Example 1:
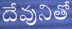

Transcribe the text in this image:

దేవునితో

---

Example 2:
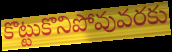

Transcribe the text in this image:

కొట్టుకొనిపోవువరకు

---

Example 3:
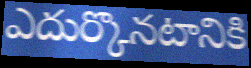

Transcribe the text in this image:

ఎదుర్కొనటానికి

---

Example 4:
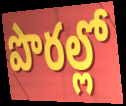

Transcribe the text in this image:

పొరల్లో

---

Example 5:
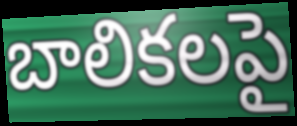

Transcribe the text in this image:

బాలికలపై